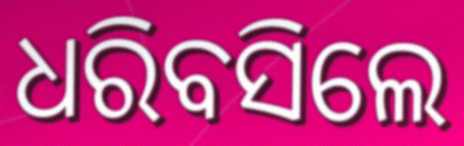
ଧରିବସିଲେ